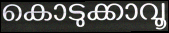
കൊടുക്കാവൂ